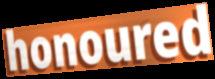
honoured